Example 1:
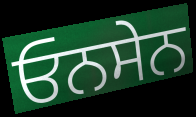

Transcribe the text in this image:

ਓਨਸੇਨ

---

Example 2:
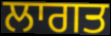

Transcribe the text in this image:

ਲਾਗਤ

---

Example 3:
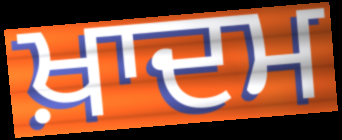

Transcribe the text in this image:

ਖ਼ਾਦਮ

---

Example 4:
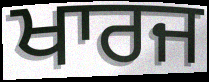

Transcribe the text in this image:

ਖਾਰਜ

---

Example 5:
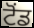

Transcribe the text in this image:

ਟੋਂਡ